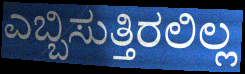
ಎಬ್ಬಿಸುತ್ತಿರಲಿಲ್ಲ